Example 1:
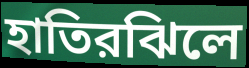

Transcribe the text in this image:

হাতিরঝিলে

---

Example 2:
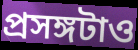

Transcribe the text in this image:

প্রসঙ্গটাও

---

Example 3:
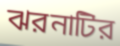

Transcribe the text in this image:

ঝরনাটির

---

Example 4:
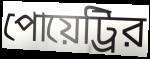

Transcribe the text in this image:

পোয়েট্রির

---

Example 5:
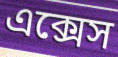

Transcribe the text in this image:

এক্সেস